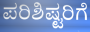
ಪರಿಶಿಷ್ಟರಿಗೆ